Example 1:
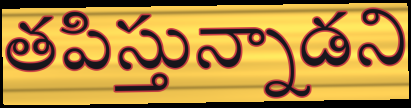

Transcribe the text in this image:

తపిస్తున్నాడని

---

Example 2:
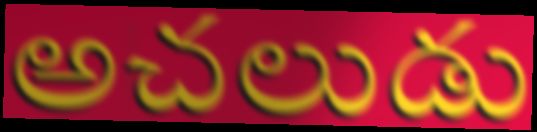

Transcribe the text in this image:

అచలుడు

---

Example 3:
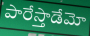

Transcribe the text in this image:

పారేస్తాడేమో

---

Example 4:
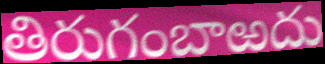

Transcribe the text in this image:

తిరుగంబాఱదు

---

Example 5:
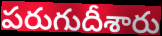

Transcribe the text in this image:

పరుగుదీశారు